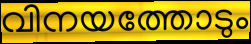
വിനയത്തോടും